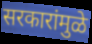
सरकारांमुळे